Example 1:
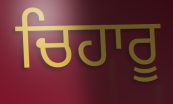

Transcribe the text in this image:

ਚਿਹਾਰੂ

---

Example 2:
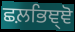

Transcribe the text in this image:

ਛਲ਼ਭਿਞ੍ਞੋ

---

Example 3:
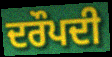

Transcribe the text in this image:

ਦਰੌਪਦੀ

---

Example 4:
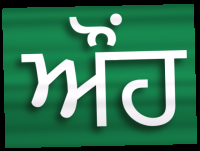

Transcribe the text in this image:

ਔਂਹ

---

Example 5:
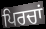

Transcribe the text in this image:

ਪਿਰਚਾਂ